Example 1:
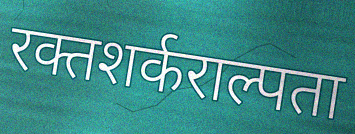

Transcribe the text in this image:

रक्तशर्कराल्पता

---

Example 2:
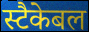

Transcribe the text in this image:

स्टैकेबल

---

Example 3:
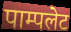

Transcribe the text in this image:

पाम्पलेट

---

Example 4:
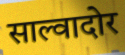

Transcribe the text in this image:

साल्वादोर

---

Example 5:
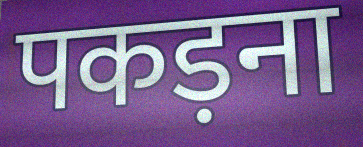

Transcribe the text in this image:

पकड़ना